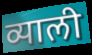
व्याली